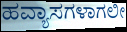
ಹವ್ಯಾಸಗಳಾಗಲೀ